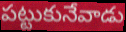
పట్టుకునేవాడు